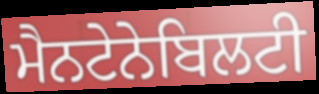
ਮੈਨਟੇਨੇਬਿਲਟੀ